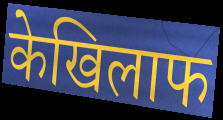
केखिलाफ